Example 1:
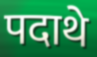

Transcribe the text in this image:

पदाथे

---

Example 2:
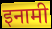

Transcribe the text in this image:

इनामी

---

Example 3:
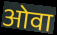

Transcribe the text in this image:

ओवा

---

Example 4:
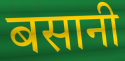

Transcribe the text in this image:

बसानी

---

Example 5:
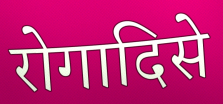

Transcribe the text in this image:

रोगादिसे